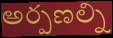
అర్పణల్ని